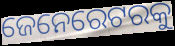
ଜେନେରେଟରକୁ